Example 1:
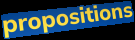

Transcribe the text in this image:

propositions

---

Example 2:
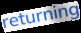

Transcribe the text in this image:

returning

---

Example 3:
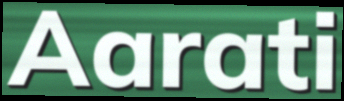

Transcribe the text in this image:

Aarati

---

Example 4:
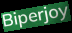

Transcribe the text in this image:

Biperjoy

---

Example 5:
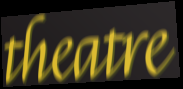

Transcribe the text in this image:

theatre